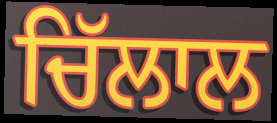
ਚਿੱਲਾਲ